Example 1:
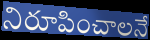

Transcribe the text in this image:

నిరూపించాలనే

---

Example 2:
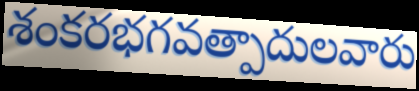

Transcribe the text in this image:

శంకరభగవత్పాదులవారు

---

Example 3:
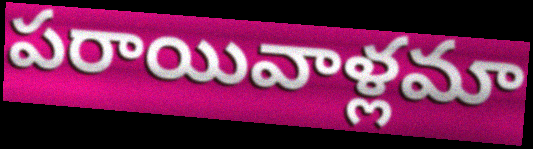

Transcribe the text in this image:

పరాయివాళ్లమా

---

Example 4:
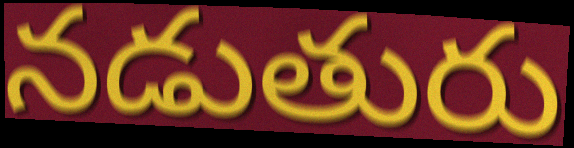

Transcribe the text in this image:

నడుతురు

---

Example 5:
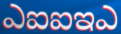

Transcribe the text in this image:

ఎఐఐఇఎ